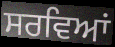
ਸਰਵਿਆਂ